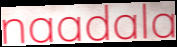
naadala